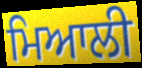
ਮਿਆਲੀ